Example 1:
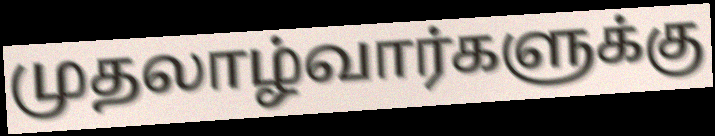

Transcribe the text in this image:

முதலாழ்வார்களுக்கு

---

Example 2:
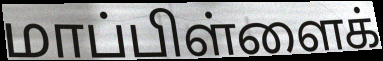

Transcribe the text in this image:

மாப்பிள்ளைக்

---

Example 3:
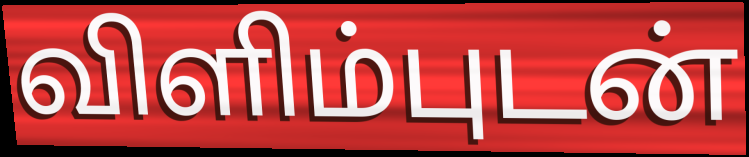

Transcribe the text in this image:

விளிம்புடன்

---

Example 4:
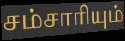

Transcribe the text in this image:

சம்சாரியும்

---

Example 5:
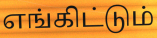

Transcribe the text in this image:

எங்கிட்டும்